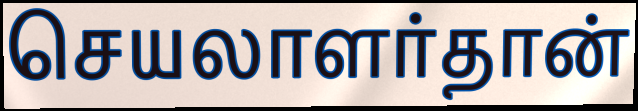
செயலாளர்தான்